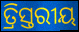
ତ୍ରିସ୍ତରୀୟ